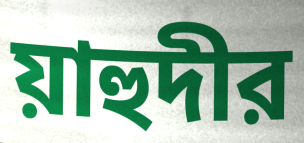
য়াহুদীর